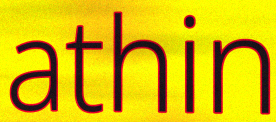
athin